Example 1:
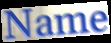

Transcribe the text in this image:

Name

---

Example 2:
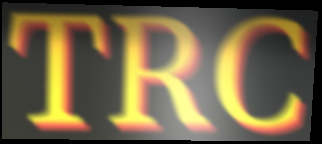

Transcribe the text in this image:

TRC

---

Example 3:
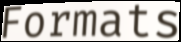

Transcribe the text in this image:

Formats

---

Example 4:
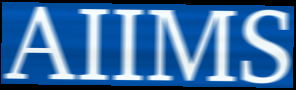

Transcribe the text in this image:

AIIMS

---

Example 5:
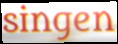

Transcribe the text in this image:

singen